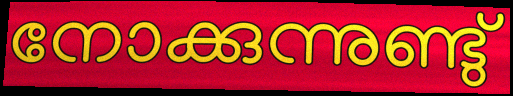
നോക്കുന്നുണ്ടു്